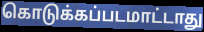
கொடுக்கப்படமாட்டாது